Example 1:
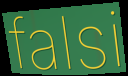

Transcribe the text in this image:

falsi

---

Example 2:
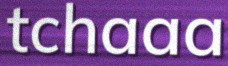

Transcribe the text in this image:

tchaaa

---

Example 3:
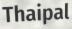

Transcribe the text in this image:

Thaipal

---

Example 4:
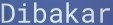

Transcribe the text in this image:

Dibakar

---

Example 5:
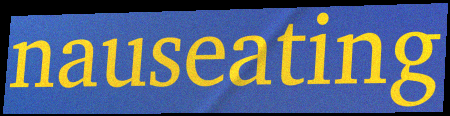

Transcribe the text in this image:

nauseating